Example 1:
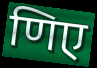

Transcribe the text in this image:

णिए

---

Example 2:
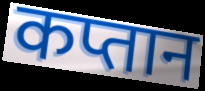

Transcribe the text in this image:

कप्तान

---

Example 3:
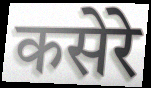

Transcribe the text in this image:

कसेरे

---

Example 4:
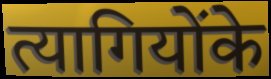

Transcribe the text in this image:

त्यागियोंके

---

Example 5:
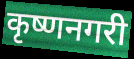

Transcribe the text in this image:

कृष्णनगरी